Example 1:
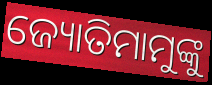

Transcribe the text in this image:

ଜ୍ୟୋତିମାମୁଙ୍କୁ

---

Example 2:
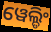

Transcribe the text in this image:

ୱେଲ୍ଡିଂ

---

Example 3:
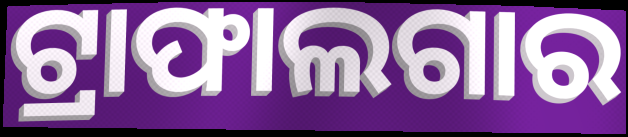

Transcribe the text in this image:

ଟ୍ରାଫାଲଗାର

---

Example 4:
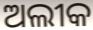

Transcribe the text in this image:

ଅଲୀକ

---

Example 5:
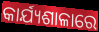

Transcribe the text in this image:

କାର୍ଯ୍ୟଶାଳାରେ